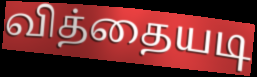
வித்தையடி